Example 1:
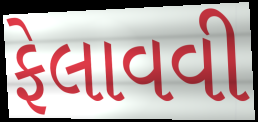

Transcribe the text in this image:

ફેલાવવી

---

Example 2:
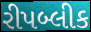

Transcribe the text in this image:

રીપબ્લીક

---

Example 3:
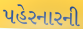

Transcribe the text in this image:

પહેરનારની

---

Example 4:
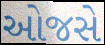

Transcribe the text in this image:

ઓજસે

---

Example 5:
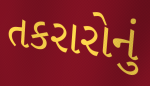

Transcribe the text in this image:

તકરારોનું